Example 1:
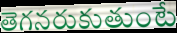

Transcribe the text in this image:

తెగనరుకుతుంటే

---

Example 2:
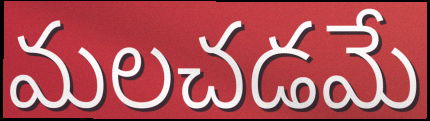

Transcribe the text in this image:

మలచడమే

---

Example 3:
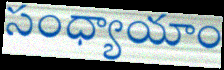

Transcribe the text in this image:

సంధ్యాయాం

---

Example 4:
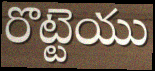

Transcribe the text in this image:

రొట్టెయు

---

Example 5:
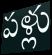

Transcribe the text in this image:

పళ్లు